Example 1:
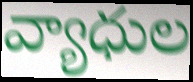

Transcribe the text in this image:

వ్యాధుల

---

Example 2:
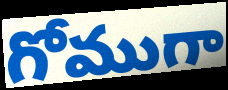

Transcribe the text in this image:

గోముగా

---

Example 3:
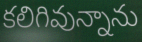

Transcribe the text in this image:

కలిగివున్నాను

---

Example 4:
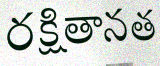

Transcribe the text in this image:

రక్షితానత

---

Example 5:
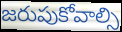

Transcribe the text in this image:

జరుపుకోవాల్సి